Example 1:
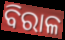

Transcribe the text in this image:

ବିରାଳ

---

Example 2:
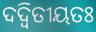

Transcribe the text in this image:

ଦଦ୍ୱିତୀୟତଃ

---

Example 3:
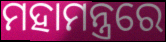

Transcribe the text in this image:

ମହାମନ୍ତ୍ରରେ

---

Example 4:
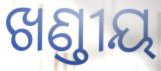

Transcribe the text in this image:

ଖଣ୍ଡୀୟ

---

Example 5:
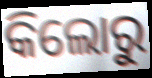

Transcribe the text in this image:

କିଲୋରୁ